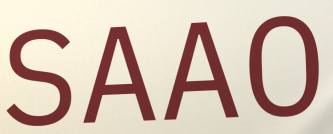
SAAO